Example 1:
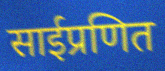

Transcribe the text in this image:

साईप्रणित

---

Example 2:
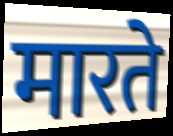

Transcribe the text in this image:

मारते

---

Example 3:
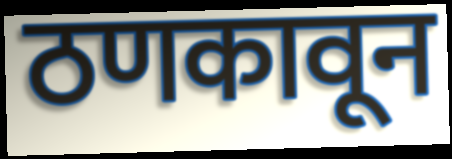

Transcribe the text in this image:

ठणकावून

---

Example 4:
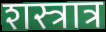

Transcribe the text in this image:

शस्त्रात्र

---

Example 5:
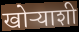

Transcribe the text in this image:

खोऱ्याशी